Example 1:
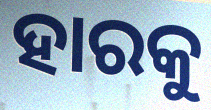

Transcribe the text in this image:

ହାରକୁ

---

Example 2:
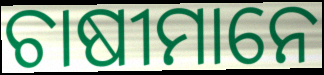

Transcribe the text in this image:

ଚାଷୀମାନେ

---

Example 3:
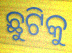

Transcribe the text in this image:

ଛୁଟିକୁ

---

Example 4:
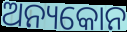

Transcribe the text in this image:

ଅନ୍ୟକୋନ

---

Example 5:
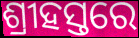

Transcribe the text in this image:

ଶ୍ରୀହସ୍ତରେ